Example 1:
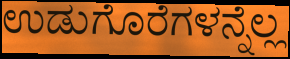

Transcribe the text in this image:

ಉಡುಗೊರೆಗಳನ್ನೆಲ್ಲ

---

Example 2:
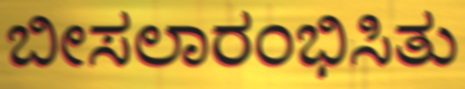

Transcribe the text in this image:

ಬೀಸಲಾರಂಭಿಸಿತು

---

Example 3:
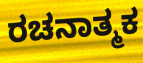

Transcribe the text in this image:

ರಚನಾತ್ಮಕ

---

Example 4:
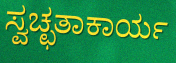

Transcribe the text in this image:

ಸ್ವಚ್ಛತಾಕಾರ್ಯ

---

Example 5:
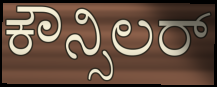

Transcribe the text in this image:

ಕೌನ್ಸಿಲರ್